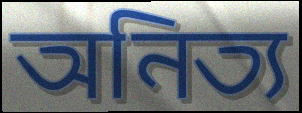
অনিত্য